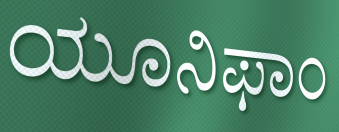
ಯೂನಿಫಾಂ